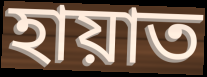
হায়াত